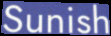
Sunish